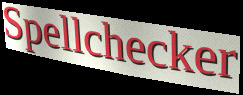
Spellchecker